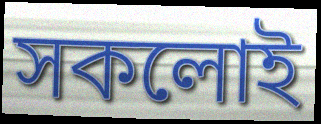
সকলোই